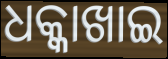
ଧକ୍କାଖାଇ